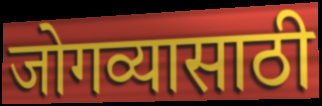
जोगव्यासाठी